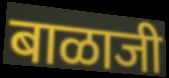
बाळाजी